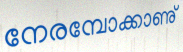
നേരമ്പോക്കാണു്